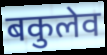
बकुलेव